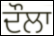
ਦੌਲਾ